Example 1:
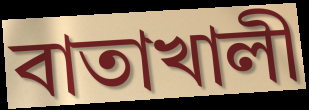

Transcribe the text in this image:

বাতাখালী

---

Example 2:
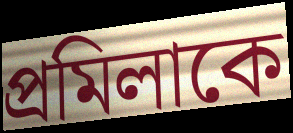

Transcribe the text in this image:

প্রমিলাকে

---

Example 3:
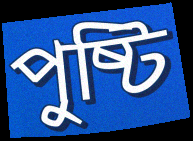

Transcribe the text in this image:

পুষ্টি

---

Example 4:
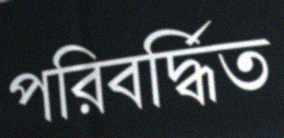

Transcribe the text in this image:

পরিবর্দ্ধিত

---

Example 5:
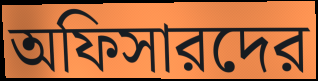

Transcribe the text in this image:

অফিসারদের